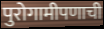
पुरोगामीपणाची